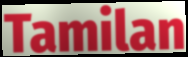
Tamilan